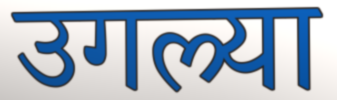
उगल्या